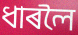
ধাৰলৈ